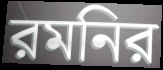
রমনির